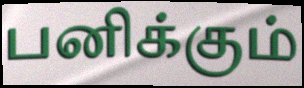
பனிக்கும்